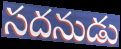
సదనుడు